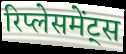
रिप्लेसमेंट्स